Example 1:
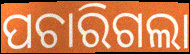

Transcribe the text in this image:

ପଚାରିଗଲା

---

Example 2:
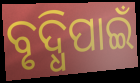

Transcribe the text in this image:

ବୃଦ୍ଧିପାଇଁ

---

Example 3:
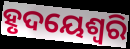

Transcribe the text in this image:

ହୃଦୟେଶ୍ଵରି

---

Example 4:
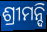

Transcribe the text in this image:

ଶ୍ରୀମନ୍ଦି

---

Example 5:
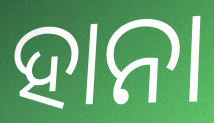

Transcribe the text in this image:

ହାନା